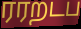
ரரறடப